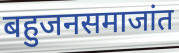
बहुजनसमाजांत